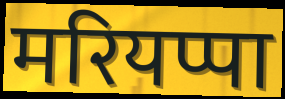
मरियप्पा